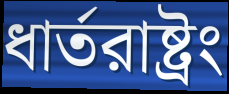
ধার্তরাষ্ট্রং